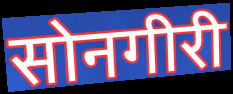
सोनगीरी